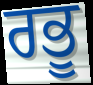
ਰਭੂ